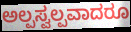
ಅಲ್ಪಸ್ವಲ್ಪವಾದರೂ